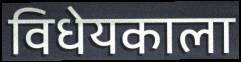
विधेयकाला